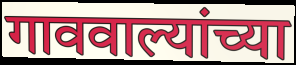
गाववाल्यांच्या